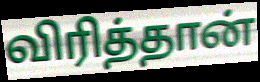
விரித்தான்